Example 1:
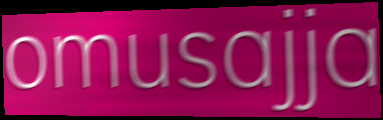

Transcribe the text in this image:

omusajja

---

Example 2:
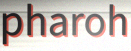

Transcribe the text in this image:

pharoh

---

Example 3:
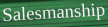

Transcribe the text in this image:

Salesmanship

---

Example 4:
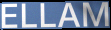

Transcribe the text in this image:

ELLAM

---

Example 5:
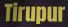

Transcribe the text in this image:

Tirupur